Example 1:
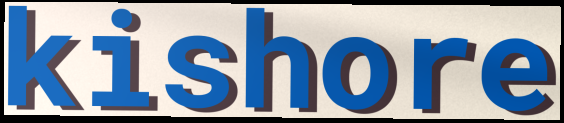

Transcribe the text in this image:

kishore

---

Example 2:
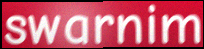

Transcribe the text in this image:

swarnim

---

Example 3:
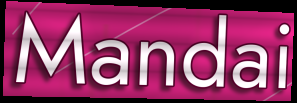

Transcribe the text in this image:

Mandai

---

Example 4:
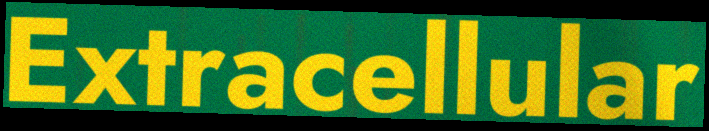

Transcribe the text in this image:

Extracellular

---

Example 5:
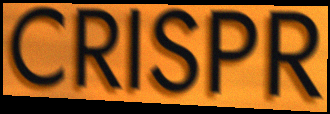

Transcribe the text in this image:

CRISPR